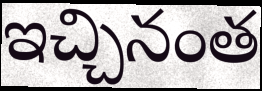
ఇచ్చినంత